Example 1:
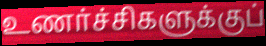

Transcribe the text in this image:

உணர்ச்சிகளுக்குப்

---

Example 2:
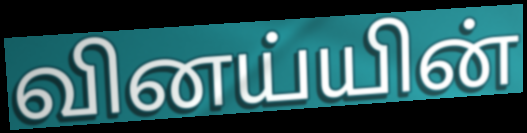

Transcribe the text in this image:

வினய்யின்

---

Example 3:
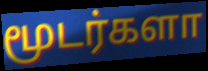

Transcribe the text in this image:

மூடர்களா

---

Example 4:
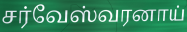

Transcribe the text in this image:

சர்வேஸ்வரனாய்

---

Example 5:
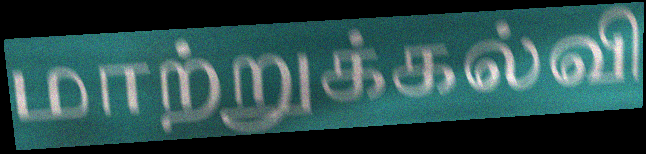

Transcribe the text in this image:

மாற்றுக்கல்வி